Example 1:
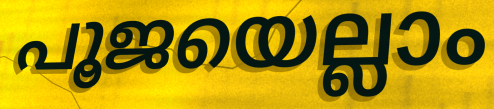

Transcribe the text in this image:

പൂജയെല്ലാം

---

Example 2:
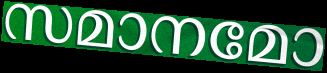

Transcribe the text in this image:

സമാനമോ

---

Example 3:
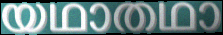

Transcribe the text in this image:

യഥാതഥാ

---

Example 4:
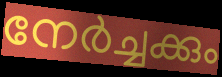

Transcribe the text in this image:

നേർച്ചക്കും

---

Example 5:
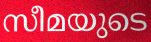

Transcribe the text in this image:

സീമയുടെ